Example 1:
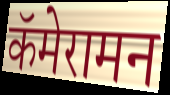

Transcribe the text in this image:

कॅमेरामन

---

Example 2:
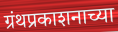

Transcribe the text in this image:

ग्रंथप्रकाशनाच्या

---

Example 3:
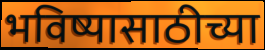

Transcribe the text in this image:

भविष्यासाठीच्या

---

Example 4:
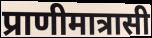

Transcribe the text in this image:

प्राणीमात्रासी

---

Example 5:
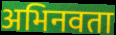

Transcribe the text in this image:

अभिनवता